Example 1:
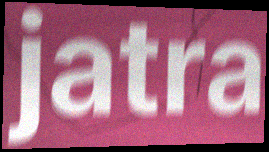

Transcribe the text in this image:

jatra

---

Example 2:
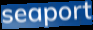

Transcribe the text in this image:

seaport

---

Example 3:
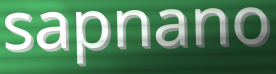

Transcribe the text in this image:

sapnano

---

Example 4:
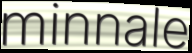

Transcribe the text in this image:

minnale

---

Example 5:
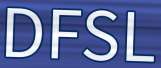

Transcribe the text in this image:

DFSL